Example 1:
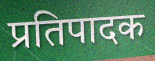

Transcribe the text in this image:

प्रतिपादक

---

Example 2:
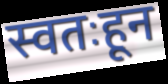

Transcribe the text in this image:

स्वतःहून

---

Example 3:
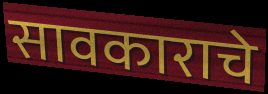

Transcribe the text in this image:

सावकाराचे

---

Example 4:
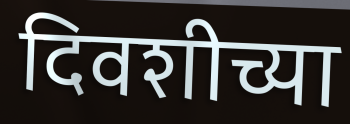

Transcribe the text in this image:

दिवशीच्या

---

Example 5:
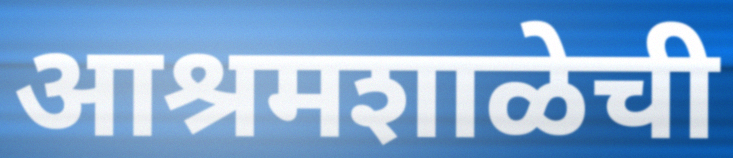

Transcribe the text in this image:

आश्रमशाळेची